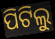
ପିଟିଲୁ